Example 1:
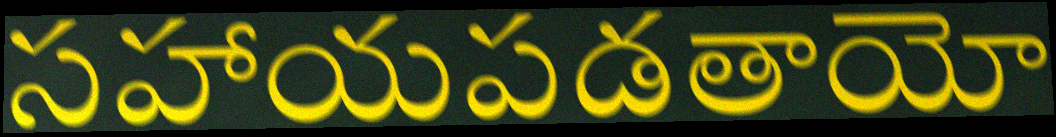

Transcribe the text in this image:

సహాయపడతాయో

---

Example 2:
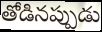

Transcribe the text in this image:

తోడినప్పుడు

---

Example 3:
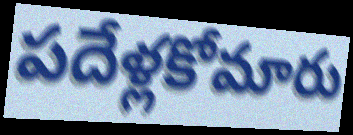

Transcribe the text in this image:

పదేళ్లకోమారు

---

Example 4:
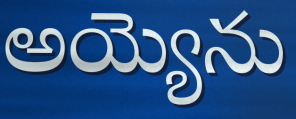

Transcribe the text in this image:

అయ్యెను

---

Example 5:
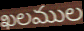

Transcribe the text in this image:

ఖలముల